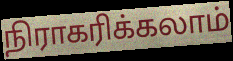
நிராகரிக்கலாம்